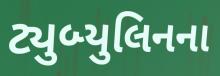
ટ્યુબ્યુલિનના